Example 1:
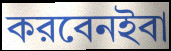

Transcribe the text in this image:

করবেনইবা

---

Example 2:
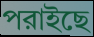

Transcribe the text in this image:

পরাইছে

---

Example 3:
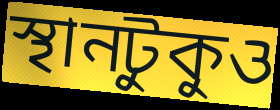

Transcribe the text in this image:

স্থানটুকুও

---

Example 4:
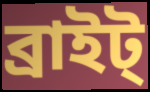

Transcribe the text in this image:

ব্রাইট্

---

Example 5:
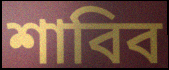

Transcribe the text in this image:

শাবিব